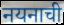
नयनाची